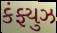
કંફ્યુઝ